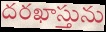
దరఖాస్తును